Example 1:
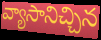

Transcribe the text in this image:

వ్యాసానిచ్చిన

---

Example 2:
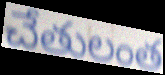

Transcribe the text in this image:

చేతులంత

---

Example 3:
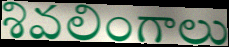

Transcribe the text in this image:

శివలింగాలు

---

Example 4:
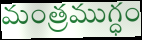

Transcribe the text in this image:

మంత్రముగ్ధం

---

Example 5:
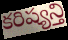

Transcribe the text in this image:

కరిష్యన్తి